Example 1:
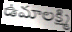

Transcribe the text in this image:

ఉమాలక్ష్మి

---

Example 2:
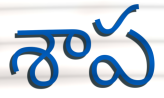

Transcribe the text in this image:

శాప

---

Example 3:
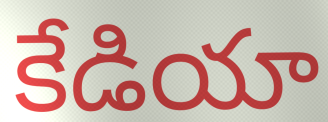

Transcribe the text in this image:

కేడియా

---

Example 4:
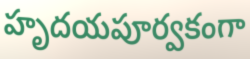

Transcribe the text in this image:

హృదయపూర్వకంగా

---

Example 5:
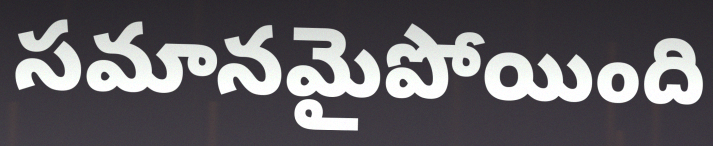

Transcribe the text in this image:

సమానమైపోయింది